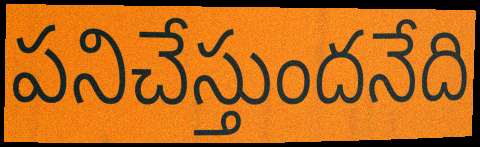
పనిచేస్తుందనేది